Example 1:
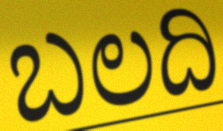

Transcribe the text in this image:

ಬಲದಿ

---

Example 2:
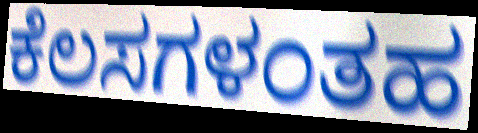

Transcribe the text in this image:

ಕೆಲಸಗಳಂತಹ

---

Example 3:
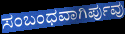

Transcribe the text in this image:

ಸಂಬಂಧವಾಗಿರ್ಪುವು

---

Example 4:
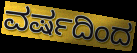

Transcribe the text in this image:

ವರ್ಷದಿಂದ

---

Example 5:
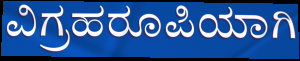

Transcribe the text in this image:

ವಿಗ್ರಹರೂಪಿಯಾಗಿ